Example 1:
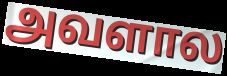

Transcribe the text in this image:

அவளால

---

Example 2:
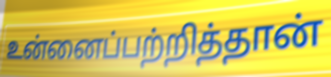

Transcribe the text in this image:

உன்னைப்பற்றித்தான்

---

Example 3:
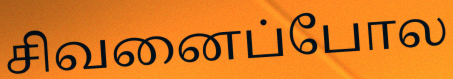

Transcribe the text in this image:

சிவனைப்போல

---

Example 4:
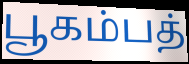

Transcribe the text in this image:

பூகம்பத்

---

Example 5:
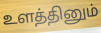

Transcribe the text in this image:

உளத்தினும்